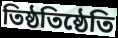
তিষ্ঠতিষ্ঠেতি